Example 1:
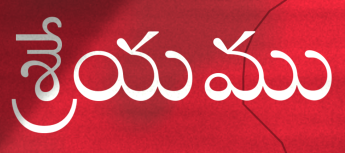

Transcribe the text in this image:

శ్రేయము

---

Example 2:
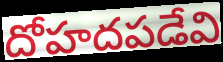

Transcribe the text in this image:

దోహదపడేవి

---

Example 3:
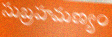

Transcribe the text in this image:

సుబ్రహమణ్యం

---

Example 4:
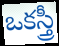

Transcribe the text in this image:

ఒకస్త్రీ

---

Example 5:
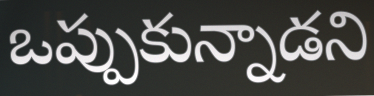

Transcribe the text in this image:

ఒప్పుకున్నాడని